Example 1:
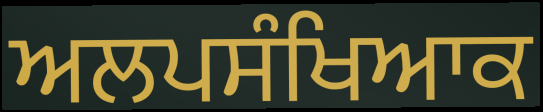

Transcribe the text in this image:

ਅਲਪਸੰਖਿਆਕ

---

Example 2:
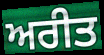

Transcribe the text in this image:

ਅਰੀਤ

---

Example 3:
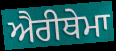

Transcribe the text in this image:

ਐਰੀਥੇਮਾ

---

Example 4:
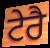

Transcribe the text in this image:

ਟੇਰੈ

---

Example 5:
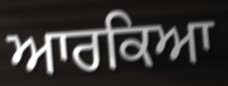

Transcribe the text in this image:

ਆਰਕਿਆ